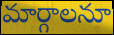
మార్గాలనూ